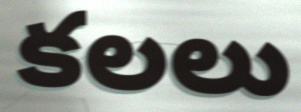
కలలు